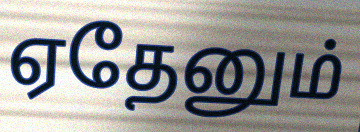
ஏதேனும்